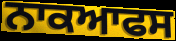
ਨਾਕਆਫਸ